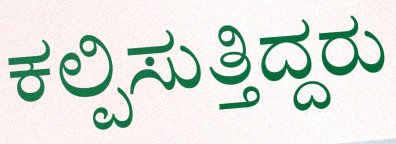
ಕಲ್ಪಿಸುತ್ತಿದ್ದರು